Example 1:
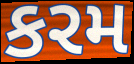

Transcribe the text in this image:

કરમ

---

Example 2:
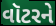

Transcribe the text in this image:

વૉટરને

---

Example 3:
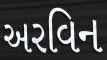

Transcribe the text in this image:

અરવિન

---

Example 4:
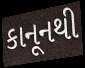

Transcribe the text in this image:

કાનૂનથી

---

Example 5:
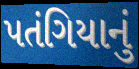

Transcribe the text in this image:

પતંગિયાનું